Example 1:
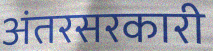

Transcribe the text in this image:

अंतरसरकारी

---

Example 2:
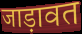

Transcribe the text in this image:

जाड़ावत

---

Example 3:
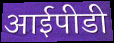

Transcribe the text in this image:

आईपीडी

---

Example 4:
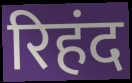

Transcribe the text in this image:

रिहंद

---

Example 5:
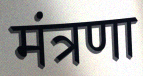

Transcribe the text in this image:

मंत्रणा